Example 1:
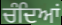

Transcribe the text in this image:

ਚੰਦਿਆਂ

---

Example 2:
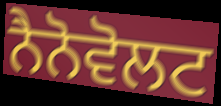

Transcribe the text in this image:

ਨੈਨੋਵੋਲਟ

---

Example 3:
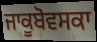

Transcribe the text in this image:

ਜਾਕੂਬੋਵਸਕਾ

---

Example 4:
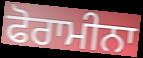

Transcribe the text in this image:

ਫੋਰਾਮੀਨਾ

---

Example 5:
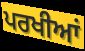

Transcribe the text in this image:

ਪਰਖੀਆਂ